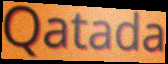
Qatada